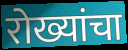
रोख्यांचा